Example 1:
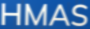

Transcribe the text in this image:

HMAS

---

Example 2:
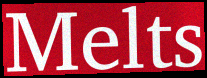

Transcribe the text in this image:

Melts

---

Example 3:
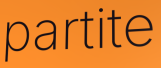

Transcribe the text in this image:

partite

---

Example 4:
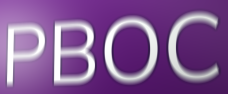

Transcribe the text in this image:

PBOC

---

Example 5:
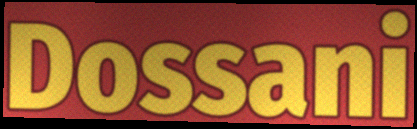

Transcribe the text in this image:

Dossani